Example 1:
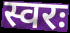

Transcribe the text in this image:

स्वरः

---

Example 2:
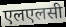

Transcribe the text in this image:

एलएलसी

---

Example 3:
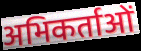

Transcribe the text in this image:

अभिकर्ताओं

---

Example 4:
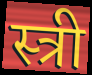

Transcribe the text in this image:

स्त्री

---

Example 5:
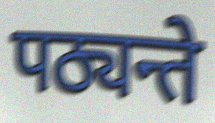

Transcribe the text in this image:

पठ्यन्ते